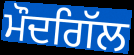
ਮੌਦਗਿੱਲ